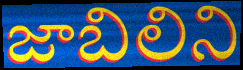
జాబిలిని